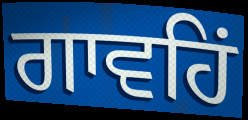
ਗਾਵਹਿਂ